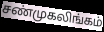
சண்முகலிங்கம்